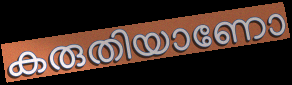
കരുതിയാണോ